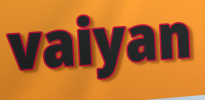
vaiyan